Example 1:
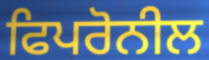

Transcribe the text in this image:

ਫਿਪਰੋਨੀਲ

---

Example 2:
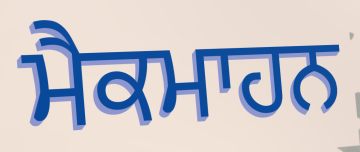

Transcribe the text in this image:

ਮੈਕਮਾਹਨ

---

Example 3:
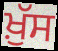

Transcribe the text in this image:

ਖ਼ੁੱਸ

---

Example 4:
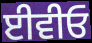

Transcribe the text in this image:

ਈਵੀਓ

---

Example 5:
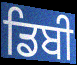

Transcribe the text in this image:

ਡਿਬੀ